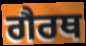
ਗੈਰਥ